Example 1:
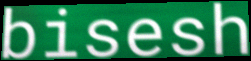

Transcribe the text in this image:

bisesh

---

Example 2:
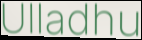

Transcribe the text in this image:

Ulladhu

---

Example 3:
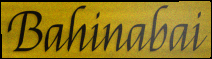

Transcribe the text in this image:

Bahinabai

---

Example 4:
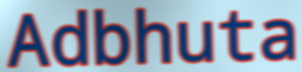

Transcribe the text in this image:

Adbhuta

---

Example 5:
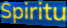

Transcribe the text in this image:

Spiritu